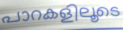
പാറകളിലൂടെ